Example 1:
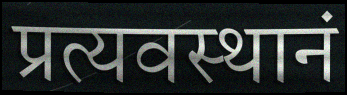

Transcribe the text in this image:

प्रत्यवस्थानं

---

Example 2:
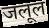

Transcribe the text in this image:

जलूल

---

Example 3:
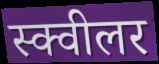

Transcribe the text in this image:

स्क्वीलर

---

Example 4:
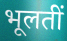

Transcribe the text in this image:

भूलतीं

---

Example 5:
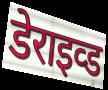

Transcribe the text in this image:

डेराइव्ड